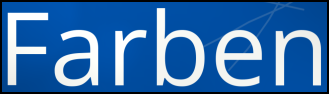
Farben